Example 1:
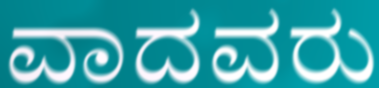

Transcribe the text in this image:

ವಾದವರು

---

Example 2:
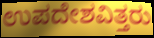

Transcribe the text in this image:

ಉಪದೇಶವಿತ್ತರು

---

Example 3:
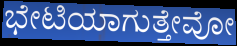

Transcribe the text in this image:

ಭೇಟಿಯಾಗುತ್ತೇವೋ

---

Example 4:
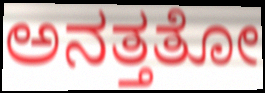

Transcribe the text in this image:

ಅನತ್ತತೋ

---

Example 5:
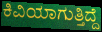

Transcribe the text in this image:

ಕಿವಿಯಾಗುತ್ತಿದ್ದೆ